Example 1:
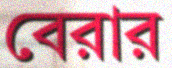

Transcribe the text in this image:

বেরার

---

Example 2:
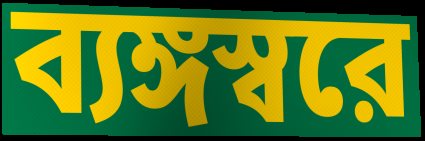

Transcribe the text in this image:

ব্যঙ্গস্বরে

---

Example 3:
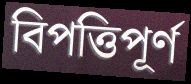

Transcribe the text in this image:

বিপত্তিপূর্ণ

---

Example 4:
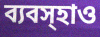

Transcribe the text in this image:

ব্যবস্হাও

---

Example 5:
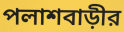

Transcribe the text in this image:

পলাশবাড়ীর